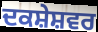
ਦਕਸ਼ੇਸ਼ਵਰ